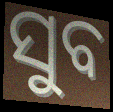
ସୁବ